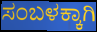
ಸಂಬಳಕ್ಕಾಗಿ